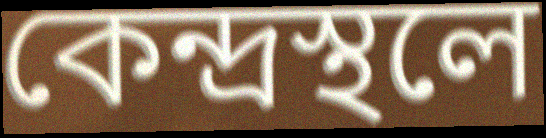
কেন্দ্রস্থলে